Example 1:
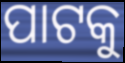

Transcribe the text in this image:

ପାଟକୁ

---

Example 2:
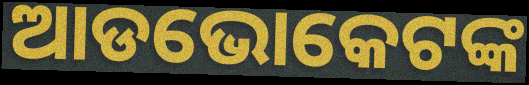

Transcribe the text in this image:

ଆଡଭୋକେଟଙ୍କ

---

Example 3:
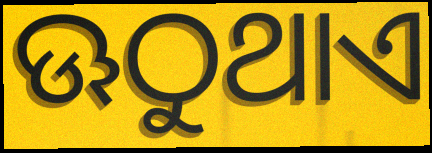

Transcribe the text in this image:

ଊଠୁଥାଏ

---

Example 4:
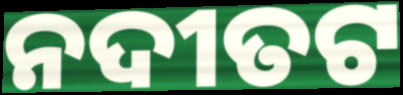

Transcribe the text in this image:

ନଦୀତଟ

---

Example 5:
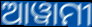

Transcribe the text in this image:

ଆୱାମୀ